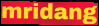
mridang